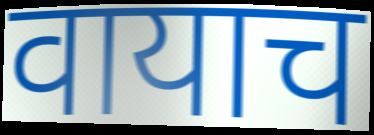
वायाच